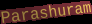
Parashuram